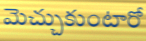
మెచ్చుకుంటారో